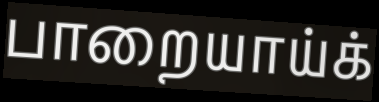
பாறையாய்க்